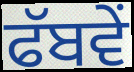
ਫੱਬਵੇਂ